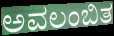
ಅವಲಂಬಿತ